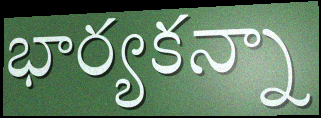
భార్యకన్నా